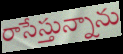
రాసేస్తున్నాను